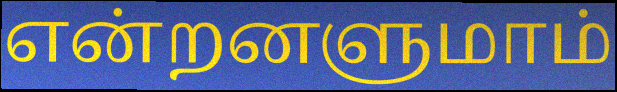
என்றனளுமாம்